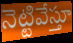
నెట్టివేస్తూ